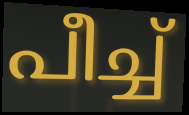
പീച്ച്